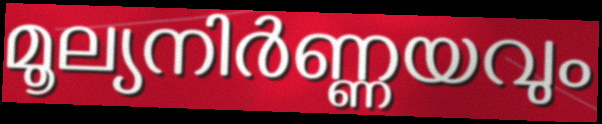
മൂല്യനിർണ്ണയവും